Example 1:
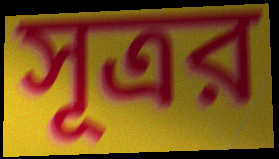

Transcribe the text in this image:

সূত্রর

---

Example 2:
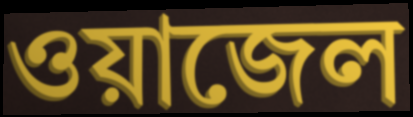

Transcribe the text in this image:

ওয়াজেল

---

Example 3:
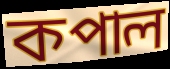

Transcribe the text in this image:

কপাল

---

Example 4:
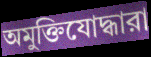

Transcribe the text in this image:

অমুক্তিযোদ্ধারা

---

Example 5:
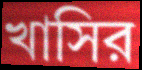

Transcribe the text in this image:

খাসির